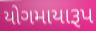
યોગમાયારૂપ